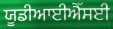
ਯੂਡੀਆਈਐੱਸਈ